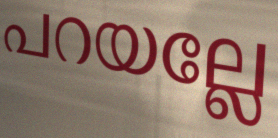
പറയല്ലേ